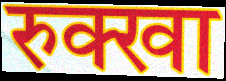
रुक्खा